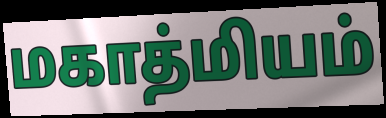
மகாத்மியம்